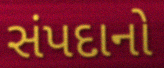
સંપદાનો